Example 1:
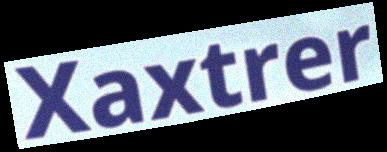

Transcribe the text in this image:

Xaxtrer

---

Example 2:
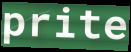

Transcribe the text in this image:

prite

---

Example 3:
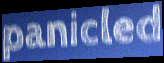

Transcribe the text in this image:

panicled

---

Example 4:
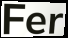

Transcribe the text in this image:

Fer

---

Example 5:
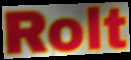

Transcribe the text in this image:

Rolt